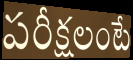
పరీక్షలంటే